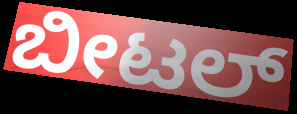
ಬೀಟಲ್